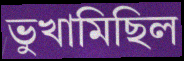
ভুখামিছিল